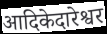
आदिकेदारेश्वर